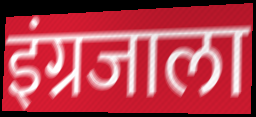
इंग्रजाला